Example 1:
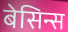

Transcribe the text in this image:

बेसिन्स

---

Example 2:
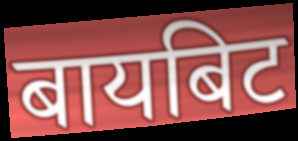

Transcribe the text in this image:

बायबिट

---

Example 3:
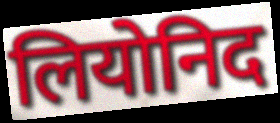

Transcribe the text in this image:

लियोनिद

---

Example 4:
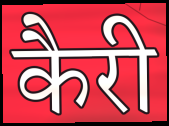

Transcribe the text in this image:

कैरी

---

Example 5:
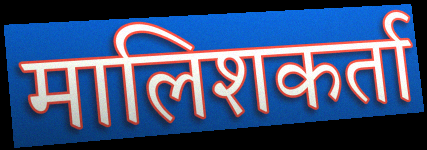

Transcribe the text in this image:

मालिशकर्ता